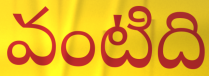
వంటిది